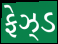
ફેઝ્ડ